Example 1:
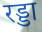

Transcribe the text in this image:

रड्डा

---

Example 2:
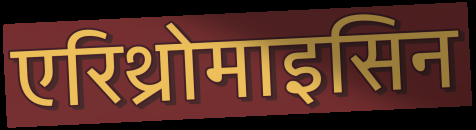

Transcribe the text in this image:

एरिथ्रोमाइसिन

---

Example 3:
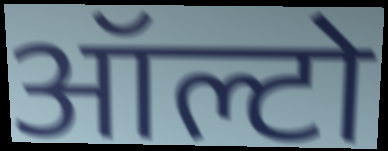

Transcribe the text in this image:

ऑल्टो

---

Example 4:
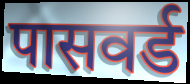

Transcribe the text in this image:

पासवर्ड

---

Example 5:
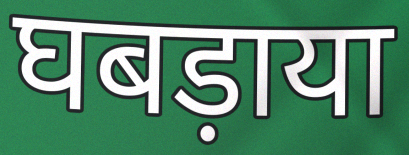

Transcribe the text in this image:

घबड़ाया